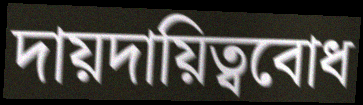
দায়দায়িত্ববোধ